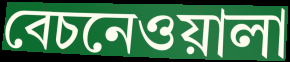
বেচনেওয়ালা